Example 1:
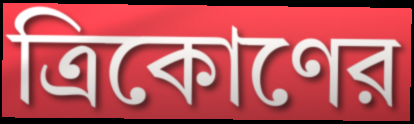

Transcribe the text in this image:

ত্রিকোণের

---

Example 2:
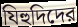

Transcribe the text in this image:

যিহুদিদের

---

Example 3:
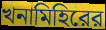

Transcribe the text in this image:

খনামিহিরের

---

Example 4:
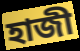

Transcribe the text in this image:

হাজী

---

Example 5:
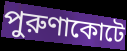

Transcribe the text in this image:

পুরুণাকোটে